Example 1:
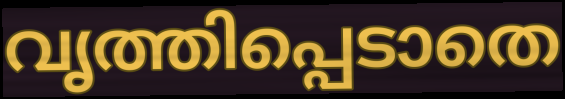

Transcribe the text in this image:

വൃത്തിപ്പെടാതെ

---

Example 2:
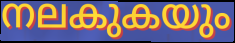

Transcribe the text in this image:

നലകുകയും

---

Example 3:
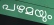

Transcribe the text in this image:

പഴമയും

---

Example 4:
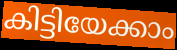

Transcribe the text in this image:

കിട്ടിയേക്കാം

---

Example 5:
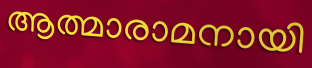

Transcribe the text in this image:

ആത്മാരാമനായി